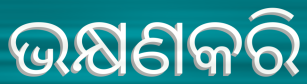
ଭକ୍ଷଣକରି